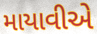
માયાવીએ